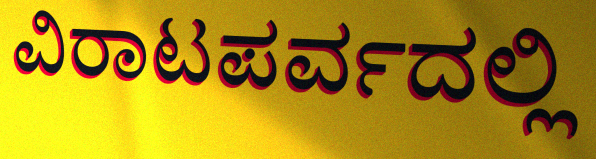
ವಿರಾಟಪರ್ವದಲ್ಲಿ